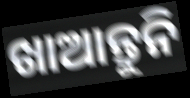
ଖାଆନ୍ତୁନି